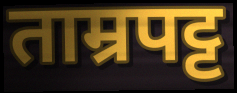
ताम्रपट्ट